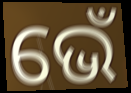
ଭେଁ